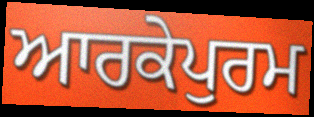
ਆਰਕੇਪੁਰਮ